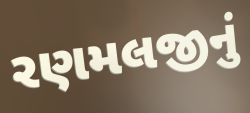
રણમલજીનું